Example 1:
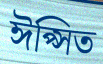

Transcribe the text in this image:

ঈপ্সিত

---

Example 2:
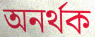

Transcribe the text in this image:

অনৰ্থক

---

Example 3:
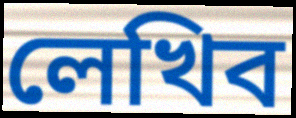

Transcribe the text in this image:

লেখিব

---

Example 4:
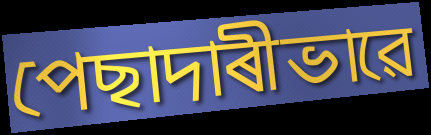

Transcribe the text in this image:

পেছাদাৰীভাৱে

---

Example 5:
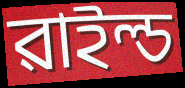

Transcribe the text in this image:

ৱাইল্ড